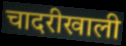
चादरीखाली